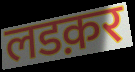
लडक़र